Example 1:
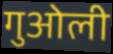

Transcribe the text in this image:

गुओली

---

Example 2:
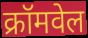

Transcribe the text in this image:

क्रॉमवेल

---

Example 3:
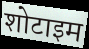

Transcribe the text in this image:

शोटाइम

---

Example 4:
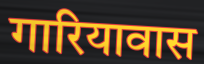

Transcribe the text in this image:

गारियावास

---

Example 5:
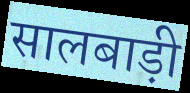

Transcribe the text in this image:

सालबाड़ी